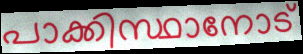
പാക്കിസ്ഥാനോട്